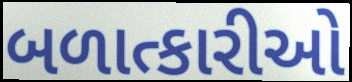
બળાત્કારીઓ